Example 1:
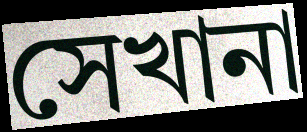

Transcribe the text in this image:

সেখানা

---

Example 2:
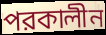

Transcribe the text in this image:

পরকালীন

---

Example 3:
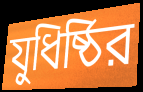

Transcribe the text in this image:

যুধিষ্ঠির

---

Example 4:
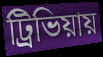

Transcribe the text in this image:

ট্রিভিয়ায়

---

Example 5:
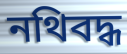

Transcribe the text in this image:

নথিবদ্ধ